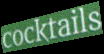
cocktails